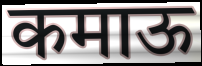
कमाऊ